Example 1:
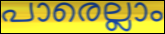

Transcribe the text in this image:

പാരെല്ലാം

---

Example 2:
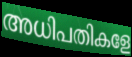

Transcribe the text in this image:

അധിപതികളേ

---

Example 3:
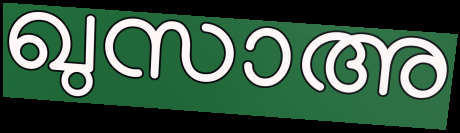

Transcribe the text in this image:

ഖുസാഅ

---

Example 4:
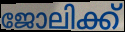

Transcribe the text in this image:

ജോലിക്ക്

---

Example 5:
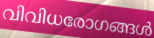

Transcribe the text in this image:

വിവിധരോഗങ്ങൾ